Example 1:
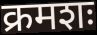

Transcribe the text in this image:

क्रमशः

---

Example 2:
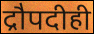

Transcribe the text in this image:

द्रौपदीही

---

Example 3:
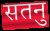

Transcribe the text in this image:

सतनु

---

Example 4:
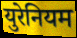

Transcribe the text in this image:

युरेनियम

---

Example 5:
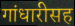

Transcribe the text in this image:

गांधारीसह